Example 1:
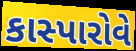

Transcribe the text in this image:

કાસ્પારોવે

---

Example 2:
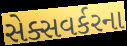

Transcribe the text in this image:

સેક્સવર્કરના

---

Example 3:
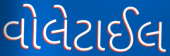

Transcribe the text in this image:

વોલેટાઈલ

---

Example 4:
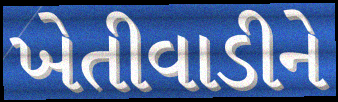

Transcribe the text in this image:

ખેતીવાડીને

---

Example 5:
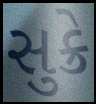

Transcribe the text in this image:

સુક્રે